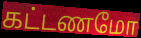
கட்டணமோ